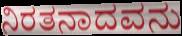
ನಿರತನಾದವನು